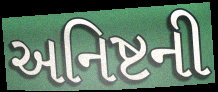
અનિષ્ટની